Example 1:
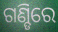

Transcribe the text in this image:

ଗଣ୍ଡିରେ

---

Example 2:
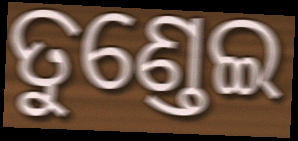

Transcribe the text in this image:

ତୁଣ୍ଡେଇ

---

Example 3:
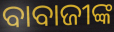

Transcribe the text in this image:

ବାବାଜୀଙ୍କ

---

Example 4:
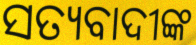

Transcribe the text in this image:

ସତ୍ୟବାଦୀଙ୍କ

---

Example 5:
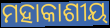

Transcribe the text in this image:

ମହାକାଶୀୟ